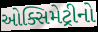
ઓક્સિમેટ્રીનો